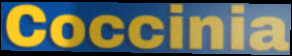
Coccinia